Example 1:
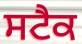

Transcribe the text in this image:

ਸਟੈਕ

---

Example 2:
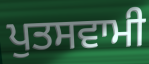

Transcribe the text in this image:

ਪੁਤਸਵਾਮੀ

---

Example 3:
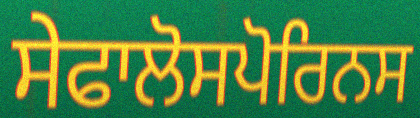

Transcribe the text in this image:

ਸੇਫਾਲੋਸਪੋਰਿਨਸ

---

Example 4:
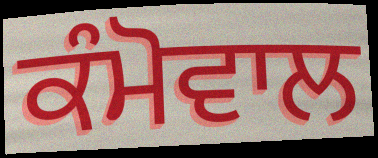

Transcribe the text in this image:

ਕੰਮੋਵਾਲ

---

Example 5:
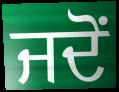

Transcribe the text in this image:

ਜਦੋਂ